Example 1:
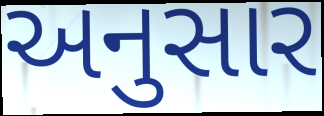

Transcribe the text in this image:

અનુસાર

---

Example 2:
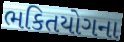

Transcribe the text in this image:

ભકિતયોગના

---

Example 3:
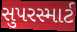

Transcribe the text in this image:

સુપરસ્માર્ટ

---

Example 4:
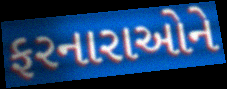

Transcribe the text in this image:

ફરનારાઓને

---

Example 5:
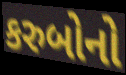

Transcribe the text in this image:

કરુબોનો